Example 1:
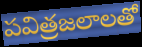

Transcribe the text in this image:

పవిత్రజలాలతో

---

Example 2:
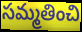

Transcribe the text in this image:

సమ్మతించి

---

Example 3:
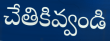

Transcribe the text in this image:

చేతికివ్వండి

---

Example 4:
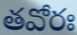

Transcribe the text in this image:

తవోరః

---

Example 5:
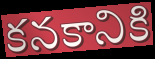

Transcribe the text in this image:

కనకానికి